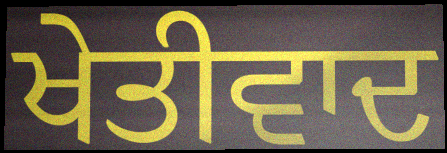
ਖੇਤੀਵਾਦ